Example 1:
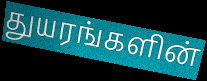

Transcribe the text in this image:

துயரங்களின்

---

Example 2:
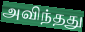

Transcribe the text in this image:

அவிந்தது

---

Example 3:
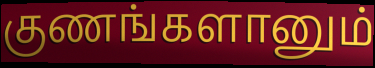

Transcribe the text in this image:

குணங்களானும்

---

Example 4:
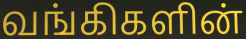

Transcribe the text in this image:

வங்கிகளின்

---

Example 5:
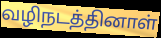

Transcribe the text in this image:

வழிநடத்தினாள்